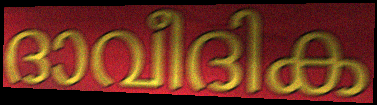
ദാവീദിക